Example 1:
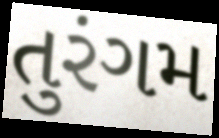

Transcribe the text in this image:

તુરંગમ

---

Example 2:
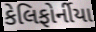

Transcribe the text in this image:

કેલિફોર્નીયા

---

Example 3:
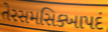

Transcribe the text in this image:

તેરસમસિક્ખાપદં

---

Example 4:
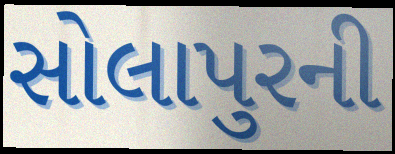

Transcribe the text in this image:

સોલાપુરની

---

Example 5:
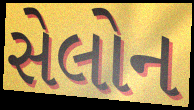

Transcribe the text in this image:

સેલોન